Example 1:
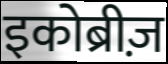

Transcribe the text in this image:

इकोब्रीज़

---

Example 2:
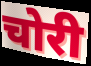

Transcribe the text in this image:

चोरी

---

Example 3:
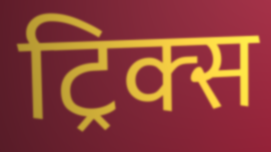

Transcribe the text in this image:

ट्रिक्‍स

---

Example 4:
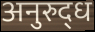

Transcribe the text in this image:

अनुरुद्ध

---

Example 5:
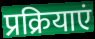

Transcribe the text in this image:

प्रक्रियाएं